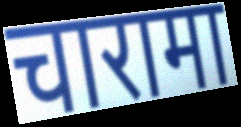
चारामा